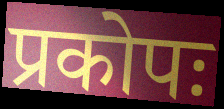
प्रकोपः